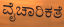
ವೈಚಾರಿಕತೆ